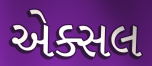
એક્સલ